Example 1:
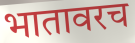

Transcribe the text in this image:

भातावरच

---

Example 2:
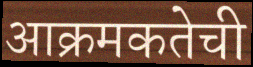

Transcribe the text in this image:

आक्रमकतेची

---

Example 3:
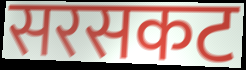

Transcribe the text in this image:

सरसकट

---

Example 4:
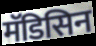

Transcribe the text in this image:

मॅडिसिन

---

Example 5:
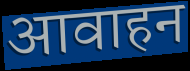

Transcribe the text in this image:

आवाहन